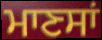
ਮਾਣਸਾਂ